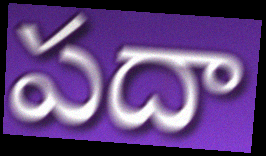
పదా